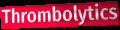
Thrombolytics